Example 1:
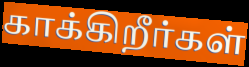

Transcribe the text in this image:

காக்கிறீர்கள்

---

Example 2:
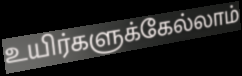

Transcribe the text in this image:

உயிர்களுக்கேல்லாம்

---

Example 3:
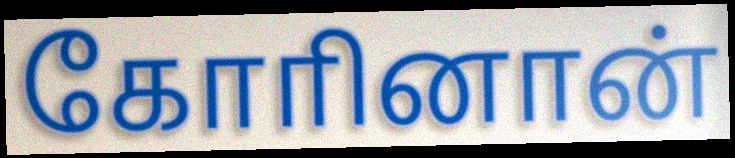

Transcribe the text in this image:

கோரினான்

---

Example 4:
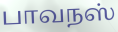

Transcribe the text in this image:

பாவநஸ்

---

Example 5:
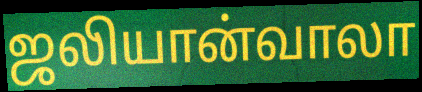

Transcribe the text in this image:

ஜலியான்வாலா